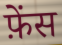
फ़ेंस